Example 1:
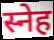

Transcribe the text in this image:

स्नेह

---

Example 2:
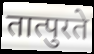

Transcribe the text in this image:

तात्पुरते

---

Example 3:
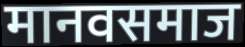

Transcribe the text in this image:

मानवसमाज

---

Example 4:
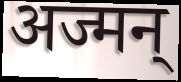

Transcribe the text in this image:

अज्मन्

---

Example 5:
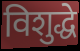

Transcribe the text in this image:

विशुद्धे